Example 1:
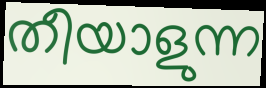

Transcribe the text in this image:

തീയാളുന്ന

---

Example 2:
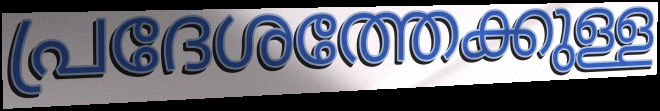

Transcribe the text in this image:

പ്രദേശത്തേക്കുള്ള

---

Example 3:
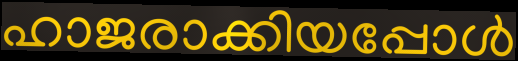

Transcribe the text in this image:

ഹാജരാക്കിയപ്പോൾ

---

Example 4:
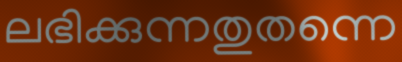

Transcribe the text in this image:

ലഭിക്കുന്നതുതന്നെ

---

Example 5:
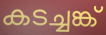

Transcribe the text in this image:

കടച്ചങ്ക്